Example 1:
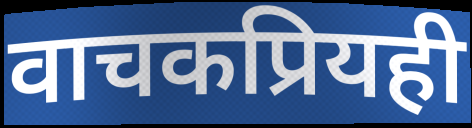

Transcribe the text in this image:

वाचकप्रियही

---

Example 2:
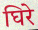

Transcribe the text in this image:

घिरे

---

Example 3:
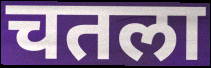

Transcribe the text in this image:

चतला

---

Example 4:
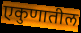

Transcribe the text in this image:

एकुणातील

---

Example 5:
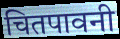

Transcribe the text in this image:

चितपावनी